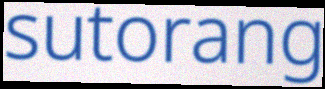
sutorang